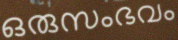
ഒരുസംഭവം